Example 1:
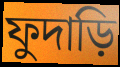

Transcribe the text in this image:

ফুদাড়ি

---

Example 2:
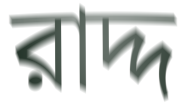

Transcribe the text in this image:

রাদ্দ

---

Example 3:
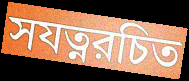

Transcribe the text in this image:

সযত্নরচিত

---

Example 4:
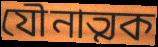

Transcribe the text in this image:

যৌনাত্মক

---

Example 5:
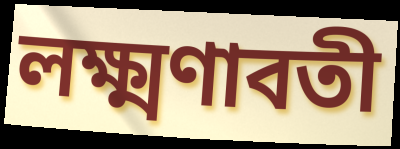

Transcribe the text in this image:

লক্ষ্মণাবতী